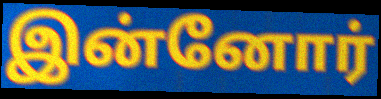
இன்னோர்